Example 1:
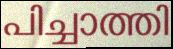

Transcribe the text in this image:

പിച്ചാത്തി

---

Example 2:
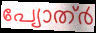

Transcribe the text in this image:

പ്യോത്ർ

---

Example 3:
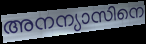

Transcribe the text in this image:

അനന്യാസിനെ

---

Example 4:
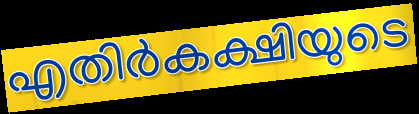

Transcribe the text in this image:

എതിർകക്ഷിയുടെ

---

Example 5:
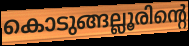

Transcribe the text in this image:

കൊടുങ്ങല്ലൂരിന്റെ